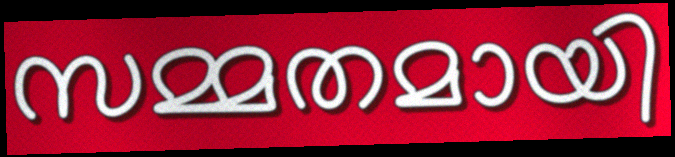
സമ്മതമായി